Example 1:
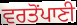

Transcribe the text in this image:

ਵਰਤੋਂਪਾਣੀ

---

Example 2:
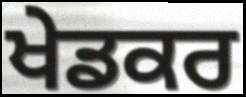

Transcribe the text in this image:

ਖੇਡਕਰ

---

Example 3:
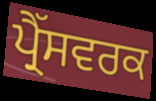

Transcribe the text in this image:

ਪ੍ਰੈੱਸਵਰਕ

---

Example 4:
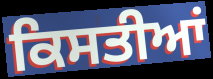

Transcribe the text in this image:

ਕਿਸਤੀਆਂ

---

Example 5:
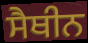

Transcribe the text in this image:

ਸੈਥੀਨ